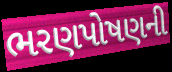
ભરણપોષણની